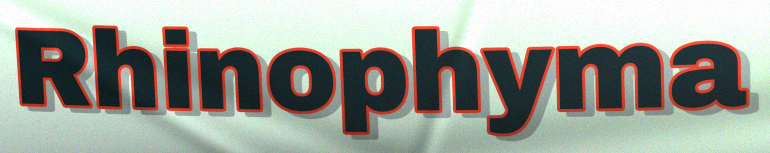
Rhinophyma